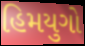
હિમયુગો